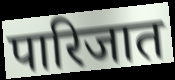
पारिजात